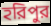
হরিপুর